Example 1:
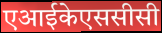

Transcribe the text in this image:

एआईकेएससीसी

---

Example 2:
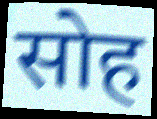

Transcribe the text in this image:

सोह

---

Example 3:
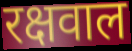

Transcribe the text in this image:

रक्षवाल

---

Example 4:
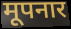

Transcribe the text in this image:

मूपनार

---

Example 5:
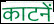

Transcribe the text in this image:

काटनें